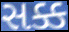
સક્ક